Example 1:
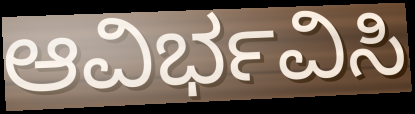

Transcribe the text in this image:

ಆವಿರ್ಭವಿಸಿ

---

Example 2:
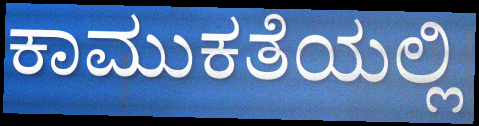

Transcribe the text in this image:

ಕಾಮುಕತೆಯಲ್ಲಿ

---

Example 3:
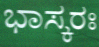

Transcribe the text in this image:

ಭಾಸ್ಕರಃ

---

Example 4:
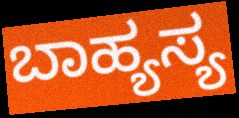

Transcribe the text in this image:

ಬಾಹ್ಯಸ್ಯ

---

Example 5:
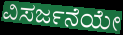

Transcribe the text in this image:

ವಿಸರ್ಜನೆಯೇ